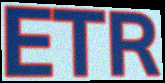
ETR